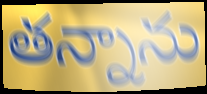
తన్నాను